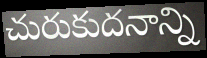
చురుకుదనాన్ని